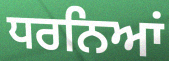
ਧਰਨਿਆਂ